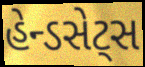
હેન્ડસેટ્સ